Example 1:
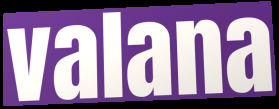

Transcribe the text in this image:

valana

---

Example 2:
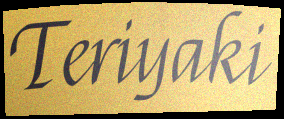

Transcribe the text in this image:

Teriyaki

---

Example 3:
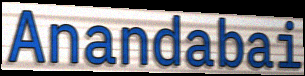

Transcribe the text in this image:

Anandabai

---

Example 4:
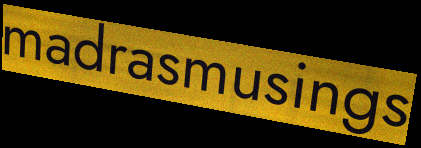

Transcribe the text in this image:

madrasmusings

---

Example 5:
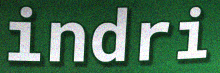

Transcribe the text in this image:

indri